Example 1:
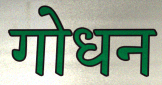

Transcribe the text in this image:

गोधन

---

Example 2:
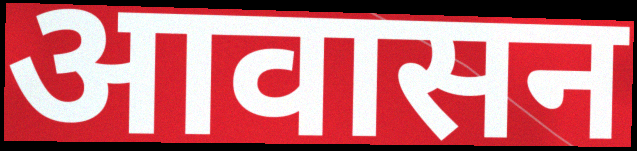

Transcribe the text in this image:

आवासन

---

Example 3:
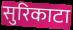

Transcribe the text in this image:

सुरिकाटा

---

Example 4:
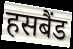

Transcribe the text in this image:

हसबैंड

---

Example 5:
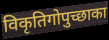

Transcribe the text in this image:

विकृतिगोपुच्छाका